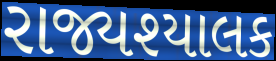
રાજ્યશ્યાલક